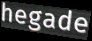
hegade